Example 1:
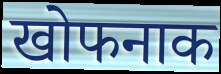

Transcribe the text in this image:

खोफनाक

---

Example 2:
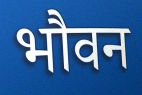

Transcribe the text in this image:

भौवन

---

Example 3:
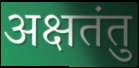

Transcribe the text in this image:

अक्षतंतु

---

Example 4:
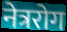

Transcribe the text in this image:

नेत्ररोग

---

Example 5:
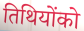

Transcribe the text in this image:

तिथियोंको